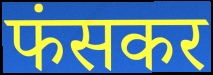
फंसकर